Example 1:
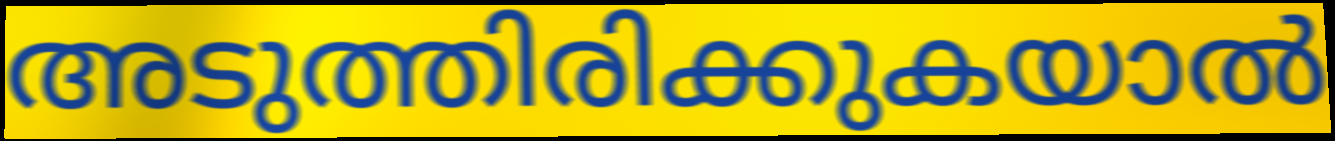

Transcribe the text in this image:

അടുത്തിരിക്കുകയാൽ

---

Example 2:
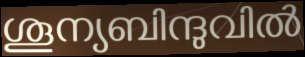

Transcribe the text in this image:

ശൂന്യബിന്ദുവിൽ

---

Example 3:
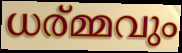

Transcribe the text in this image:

ധര്മ്മവും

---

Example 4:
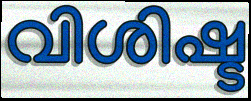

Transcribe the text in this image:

വിശിഷ്ട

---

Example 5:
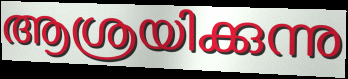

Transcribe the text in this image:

ആശ്രയിക്കുന്നു